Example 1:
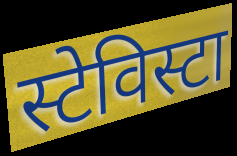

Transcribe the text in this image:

स्टेविस्टा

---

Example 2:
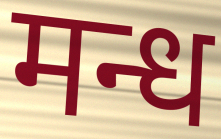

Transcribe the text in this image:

मन्ध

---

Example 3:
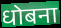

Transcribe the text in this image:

धोबना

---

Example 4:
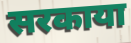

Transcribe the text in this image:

सरकाया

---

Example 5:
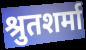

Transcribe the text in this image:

श्रुतशर्मा